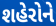
શહેરોને